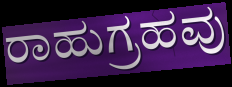
ರಾಹುಗ್ರಹವು